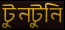
টুনটুনি